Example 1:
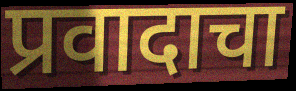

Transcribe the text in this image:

प्रवादाचा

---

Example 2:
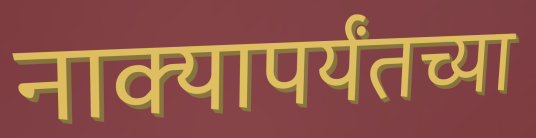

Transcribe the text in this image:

नाक्यापर्यंतच्या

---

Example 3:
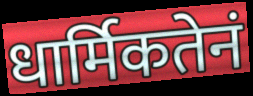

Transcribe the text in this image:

धार्मिकतेनं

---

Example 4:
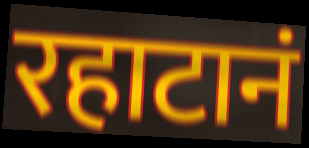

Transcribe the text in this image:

रहाटानं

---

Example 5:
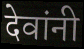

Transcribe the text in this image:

देवांनी